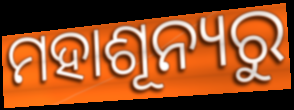
ମହାଶୂନ୍ୟରୁ